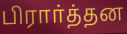
பிரார்த்தன